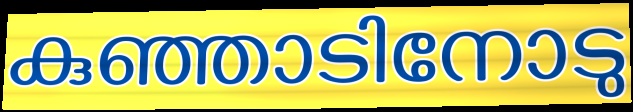
കുഞ്ഞാടിനോടു